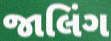
જાલિંગ